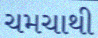
ચમચાથી